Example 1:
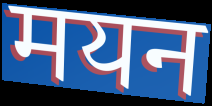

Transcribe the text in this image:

मयन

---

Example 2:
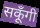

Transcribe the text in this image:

सकूँगी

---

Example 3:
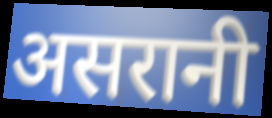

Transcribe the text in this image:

असरानी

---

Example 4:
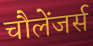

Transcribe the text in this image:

चौलेंजर्स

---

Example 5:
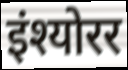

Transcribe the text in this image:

इंश्योरर